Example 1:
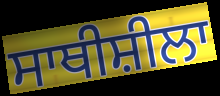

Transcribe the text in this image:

ਸਾਥੀਸ਼ੀਲਾ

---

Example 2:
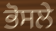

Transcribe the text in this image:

ਭੋਸਲੇ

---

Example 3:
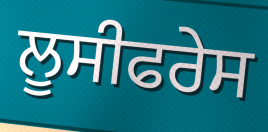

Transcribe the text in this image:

ਲੂਸੀਫਰੇਸ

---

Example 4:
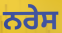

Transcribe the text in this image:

ਨਰੇਸ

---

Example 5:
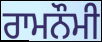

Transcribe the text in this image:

ਰਾਮਨੌਮੀ